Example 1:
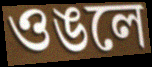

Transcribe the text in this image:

ওঙলে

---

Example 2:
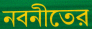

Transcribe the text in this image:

নবনীতের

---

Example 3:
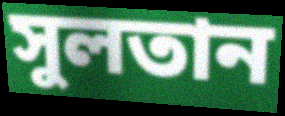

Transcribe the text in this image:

সুলতান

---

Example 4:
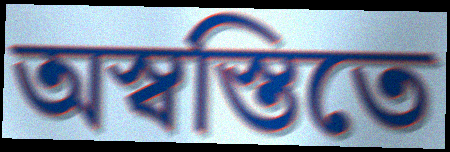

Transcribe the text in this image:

অস্বস্তিতে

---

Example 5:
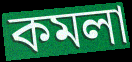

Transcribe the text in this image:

কমলা